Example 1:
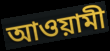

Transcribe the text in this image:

আওয়ামী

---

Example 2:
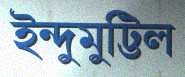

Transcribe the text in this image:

ইন্দুমুট্টিল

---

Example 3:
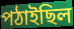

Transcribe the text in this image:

পঠাইছিল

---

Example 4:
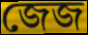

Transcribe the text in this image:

জেজ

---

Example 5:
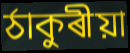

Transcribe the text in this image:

ঠাকুৰীয়া